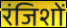
रंजिशों